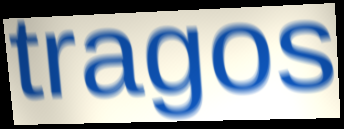
tragos